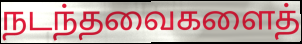
நடந்தவைகளைத்